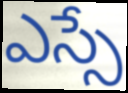
ఎస్సే